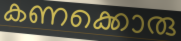
കണക്കൊരു